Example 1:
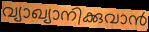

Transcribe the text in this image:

വ്യാഖ്യാനിക്കുവാൻ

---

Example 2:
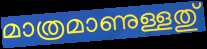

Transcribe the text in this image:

മാത്രമാണുള്ളതു്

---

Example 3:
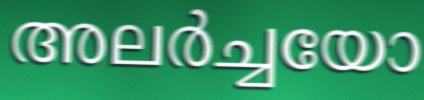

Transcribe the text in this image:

അലർച്ചയോ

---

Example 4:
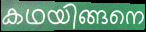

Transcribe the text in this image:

കഥയിങ്ങനെ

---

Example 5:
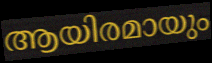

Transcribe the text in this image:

ആയിരമായും